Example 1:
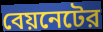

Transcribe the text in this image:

বেয়নেটের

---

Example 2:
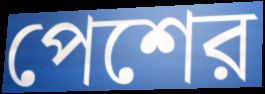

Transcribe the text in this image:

পেশের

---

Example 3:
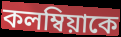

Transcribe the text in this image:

কলম্বিয়াকে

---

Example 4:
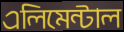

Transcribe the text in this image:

এলিমেন্টাল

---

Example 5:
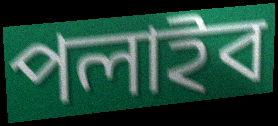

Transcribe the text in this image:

পলাইব